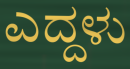
ಎದ್ದಳು